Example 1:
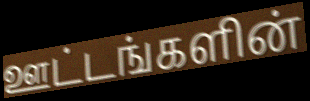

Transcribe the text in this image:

ஊட்டங்களின்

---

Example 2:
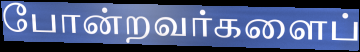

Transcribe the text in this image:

போன்றவர்களைப்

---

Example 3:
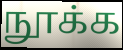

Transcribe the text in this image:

நூக்க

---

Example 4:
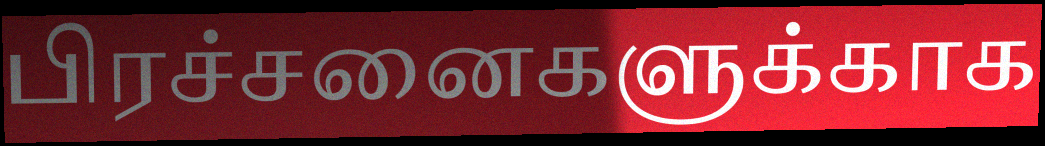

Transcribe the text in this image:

பிரச்சனைகளுக்காக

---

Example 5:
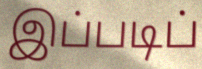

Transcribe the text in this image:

இப்படிப்